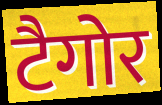
टैगोर